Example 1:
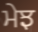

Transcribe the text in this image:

ਮੇਝ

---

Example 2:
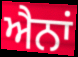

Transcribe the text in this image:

ਐਨਾਂ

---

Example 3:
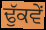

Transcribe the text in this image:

ਢੁੱਕਵੇਂ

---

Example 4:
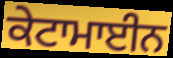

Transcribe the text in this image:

ਕੇਟਾਮਾਈਨ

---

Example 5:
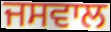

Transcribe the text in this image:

ਜਸਵਾਲ